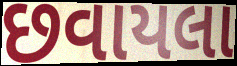
છવાયલા